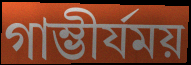
গাম্ভীর্যময়